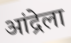
आंद्रेला